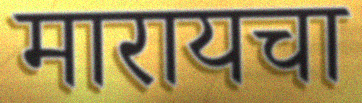
मारायचा